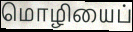
மொழியைப்